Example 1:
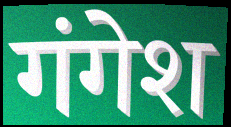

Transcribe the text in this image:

गंगेश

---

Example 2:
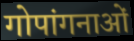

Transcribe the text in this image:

गोपांगनाओं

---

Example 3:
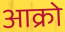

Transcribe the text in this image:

आक्रो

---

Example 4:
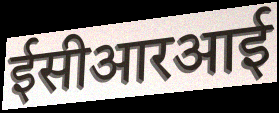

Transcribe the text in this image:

ईसीआरआई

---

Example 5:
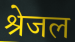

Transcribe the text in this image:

श्रेजल